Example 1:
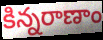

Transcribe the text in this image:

కిన్నరాణాం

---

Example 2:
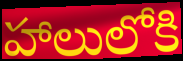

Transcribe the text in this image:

హాలులోకి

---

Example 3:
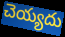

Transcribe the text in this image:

చెయ్యదు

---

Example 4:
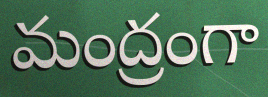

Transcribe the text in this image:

మంద్రంగా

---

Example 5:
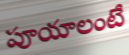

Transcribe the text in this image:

పూయాలంటే